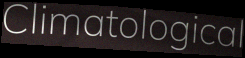
Climatological